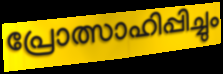
പ്രോത്സാഹിപ്പിച്ചും